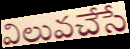
విలువచేసే